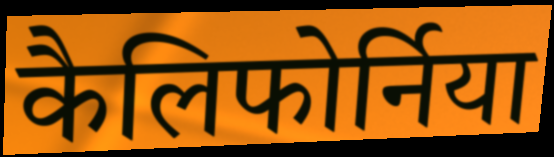
कैलिफोर्निया